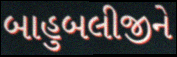
બાહુબલીજીને